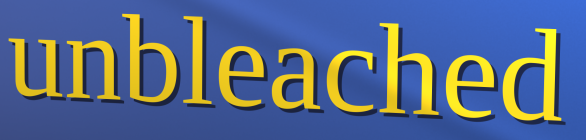
unbleached